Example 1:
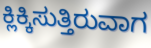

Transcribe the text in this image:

ಕ್ಲಿಕ್ಕಿಸುತ್ತಿರುವಾಗ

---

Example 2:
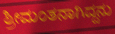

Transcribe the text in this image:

ಶ್ರೀಮಂತನಾಗಿದ್ದನು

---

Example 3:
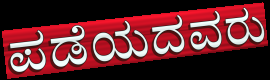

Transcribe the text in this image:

ಪಡೆಯದವರು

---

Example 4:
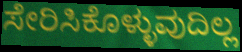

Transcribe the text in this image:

ಸೇರಿಸಿಕೊಳ್ಳುವುದಿಲ್ಲ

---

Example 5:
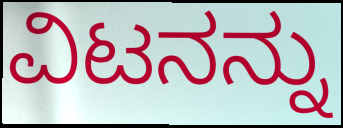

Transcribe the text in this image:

ವಿಟನನ್ನು